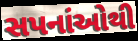
સપનાંઓથી